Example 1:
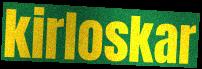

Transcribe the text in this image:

kirloskar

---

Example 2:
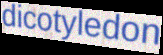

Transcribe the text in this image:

dicotyledon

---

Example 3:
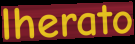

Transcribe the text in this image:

lherato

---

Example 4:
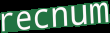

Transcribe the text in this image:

recnum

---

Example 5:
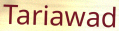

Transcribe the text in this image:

Tariawad